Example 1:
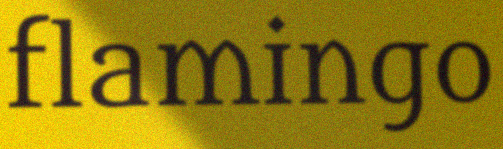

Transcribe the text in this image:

flamingo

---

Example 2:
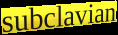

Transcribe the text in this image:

subclavian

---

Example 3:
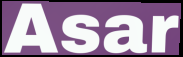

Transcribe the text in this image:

Asar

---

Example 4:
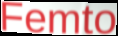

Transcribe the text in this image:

Femto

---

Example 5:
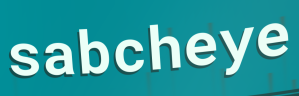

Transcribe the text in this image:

sabcheye